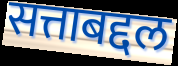
सत्ताबद्दल